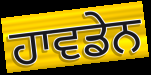
ਹਾਵਡੇਨ